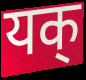
यक्